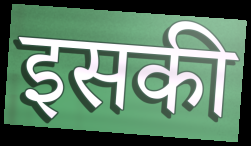
इसकी